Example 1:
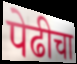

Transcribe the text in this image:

पेढीचा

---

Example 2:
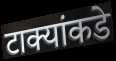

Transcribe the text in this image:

टाक्यांकडे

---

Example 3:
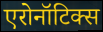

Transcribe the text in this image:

एरोनॉटिक्स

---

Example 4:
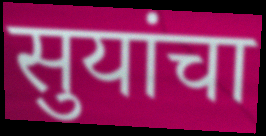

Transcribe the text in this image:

सुयांचा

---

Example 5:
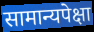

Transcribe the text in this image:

सामान्यपेक्षा